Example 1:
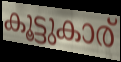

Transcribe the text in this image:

കൂട്ടുകാര്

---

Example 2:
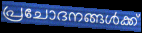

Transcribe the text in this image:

പ്രചോദനങ്ങൾക്ക്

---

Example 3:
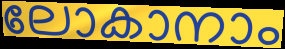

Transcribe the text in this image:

ലോകാനാം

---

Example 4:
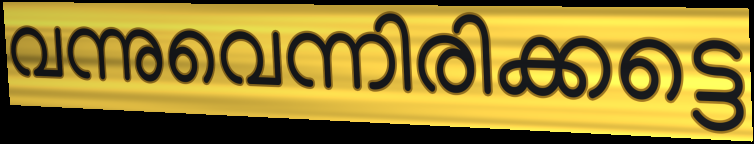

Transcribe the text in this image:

വന്നുവെന്നിരിക്കട്ടെ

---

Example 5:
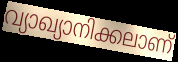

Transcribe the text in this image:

വ്യാഖ്യാനിക്കലാണ്